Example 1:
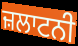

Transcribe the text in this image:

ਜ਼ਲਾਟਨੀ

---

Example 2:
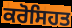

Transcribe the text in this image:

ਕਰੋਸਿਹਤ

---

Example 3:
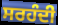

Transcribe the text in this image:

ਸਰਹੰਦੀ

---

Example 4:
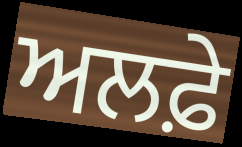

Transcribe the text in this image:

ਅਲਫ਼ੇ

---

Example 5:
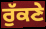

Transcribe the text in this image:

ਰੁੱਕਣੇ